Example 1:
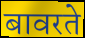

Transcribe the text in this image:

बावरते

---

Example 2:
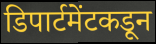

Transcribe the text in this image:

डिपार्टमेंटकडून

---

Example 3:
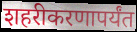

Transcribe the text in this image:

शहरीकरणापर्यंत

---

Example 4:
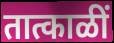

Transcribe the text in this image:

तात्काळीं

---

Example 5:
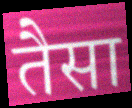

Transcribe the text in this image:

तैसा